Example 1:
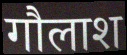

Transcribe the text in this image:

गौलाश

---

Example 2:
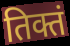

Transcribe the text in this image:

तिक्तं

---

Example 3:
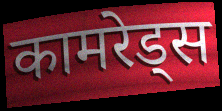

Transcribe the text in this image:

कामरेड्स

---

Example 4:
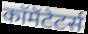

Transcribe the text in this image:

कॉमेंटेटर्स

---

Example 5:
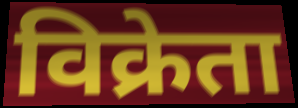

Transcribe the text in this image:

विक्रेता